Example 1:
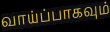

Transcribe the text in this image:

வாய்ப்பாகவும்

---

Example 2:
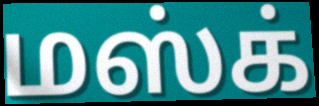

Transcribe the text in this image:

மஸ்க்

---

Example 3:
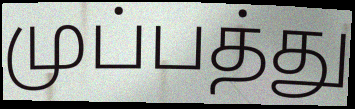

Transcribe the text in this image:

முப்பத்து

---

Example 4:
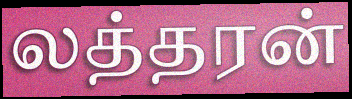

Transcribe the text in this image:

லத்தரன்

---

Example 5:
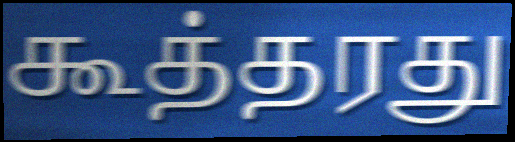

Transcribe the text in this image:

கூத்தரது